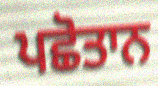
ਪਛੋਤਾਨ